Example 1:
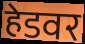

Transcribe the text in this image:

हेडवर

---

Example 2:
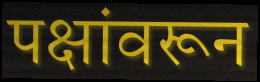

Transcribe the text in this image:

पक्षांवरून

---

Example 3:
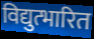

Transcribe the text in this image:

विद्युत्भारित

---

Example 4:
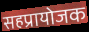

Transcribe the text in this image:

सहप्रायोजक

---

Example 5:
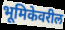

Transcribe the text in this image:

भूमिकेवरील